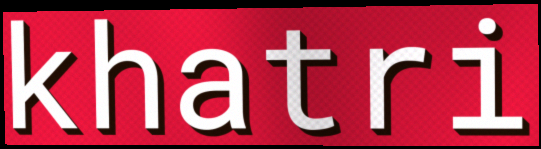
khatri